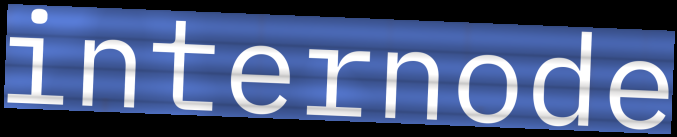
internode